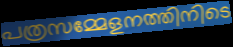
പത്രസമ്മേളനത്തിനിടെ